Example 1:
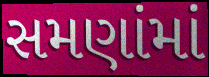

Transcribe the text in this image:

સમણાંમાં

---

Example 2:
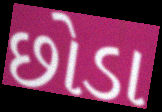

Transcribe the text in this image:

છોડા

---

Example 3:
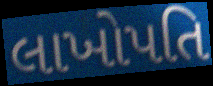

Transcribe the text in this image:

લાખોપતિ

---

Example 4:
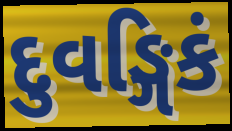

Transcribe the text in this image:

દુવઙ્ગિકં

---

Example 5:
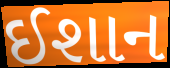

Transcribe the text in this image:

ઈશાન